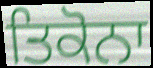
ਤਿਕੋਨਾ